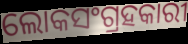
ଲୋକସଂଗ୍ରହକାରୀ